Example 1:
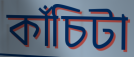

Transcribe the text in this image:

কাঁচিটা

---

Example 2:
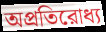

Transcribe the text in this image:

অপ্রতিরোধ্য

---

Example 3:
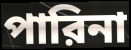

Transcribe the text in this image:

পারিনা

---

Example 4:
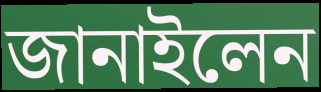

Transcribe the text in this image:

জানাইলেন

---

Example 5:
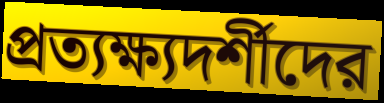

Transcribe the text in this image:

প্রত্যক্ষ্যদর্শীদের